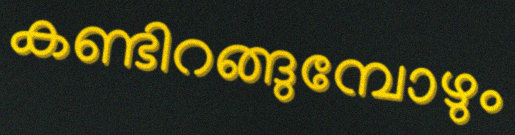
കണ്ടിറങ്ങുമ്പോഴും